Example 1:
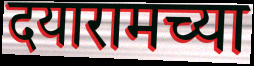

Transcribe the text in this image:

दयारामच्या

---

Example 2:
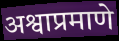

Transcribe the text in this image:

अश्वाप्रमाणे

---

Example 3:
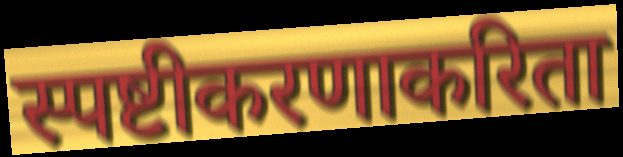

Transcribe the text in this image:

स्पष्टीकरणाकरिता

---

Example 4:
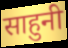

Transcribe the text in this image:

साहुनी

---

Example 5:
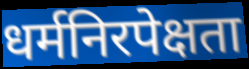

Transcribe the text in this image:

धर्मनिरपेक्षता